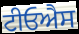
ਟੀਓਐਸ